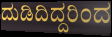
ದುಡಿದಿದ್ದರಿಂದ